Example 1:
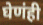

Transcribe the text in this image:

घेणंही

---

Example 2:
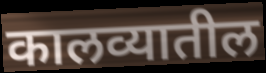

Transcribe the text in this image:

कालव्यातील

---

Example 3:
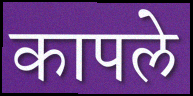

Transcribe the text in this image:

कापले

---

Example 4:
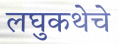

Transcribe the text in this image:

लघुकथेचे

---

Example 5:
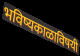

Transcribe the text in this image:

भविष्यकाळाविषयी